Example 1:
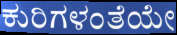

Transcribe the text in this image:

ಕುರಿಗಳಂತೆಯೇ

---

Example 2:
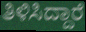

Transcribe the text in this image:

ತಿಳಿಸಿದ್ದಾರೆ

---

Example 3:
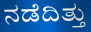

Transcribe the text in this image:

ನಡೆದಿತ್ತು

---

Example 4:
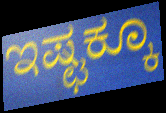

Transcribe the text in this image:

ಇಷ್ಟಕ್ಕೂ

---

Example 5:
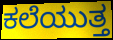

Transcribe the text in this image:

ಕಲೆಯುತ್ತ